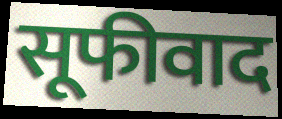
सूफीवाद